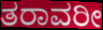
ತರಾವರೀ